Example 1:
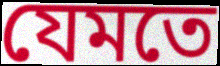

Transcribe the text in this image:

যেমতে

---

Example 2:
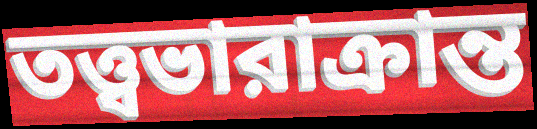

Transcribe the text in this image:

তত্ত্বভারাক্রান্ত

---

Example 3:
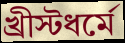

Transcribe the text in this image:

খ্রীস্টধর্মে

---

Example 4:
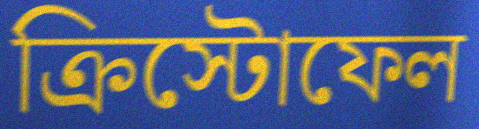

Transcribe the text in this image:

ক্রিস্টোফেল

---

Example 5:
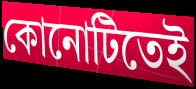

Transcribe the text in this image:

কোনোটিতেই